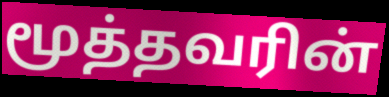
மூத்தவரின்